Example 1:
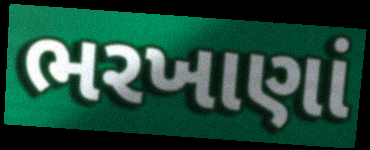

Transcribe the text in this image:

ભરખાણાં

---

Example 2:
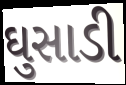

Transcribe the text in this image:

ઘુસાડી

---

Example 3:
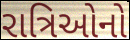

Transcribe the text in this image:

રાત્રિઓનો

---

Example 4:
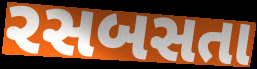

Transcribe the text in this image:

રસબસતા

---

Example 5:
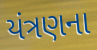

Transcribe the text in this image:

યંત્રણના